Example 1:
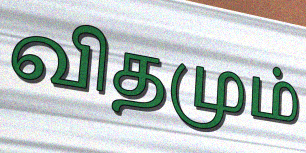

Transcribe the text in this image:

விதமும்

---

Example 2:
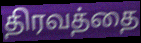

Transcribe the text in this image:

திரவத்தை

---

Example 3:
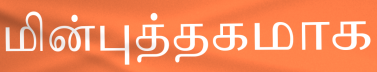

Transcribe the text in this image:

மின்புத்தகமாக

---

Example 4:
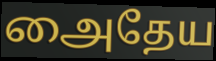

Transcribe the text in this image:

அைதேய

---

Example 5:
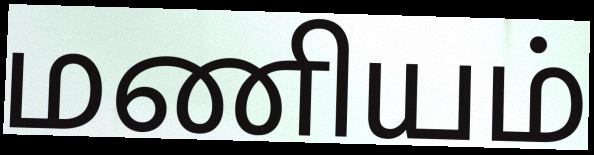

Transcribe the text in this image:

மணியம்